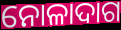
ନୋଳାଦାଗ